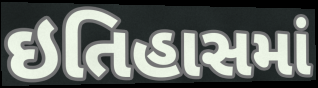
ઇતિહાસમાં